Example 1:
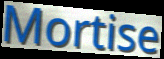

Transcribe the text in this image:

Mortise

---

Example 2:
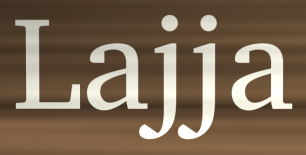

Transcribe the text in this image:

Lajja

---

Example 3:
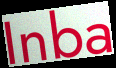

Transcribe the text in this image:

Inba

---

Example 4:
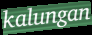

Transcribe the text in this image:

kalungan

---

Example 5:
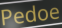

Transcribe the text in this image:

Pedoe